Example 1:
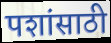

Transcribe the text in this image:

पशांसाठी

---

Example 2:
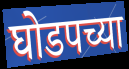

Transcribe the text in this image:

घोडपच्या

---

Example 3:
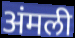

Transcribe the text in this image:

अंमली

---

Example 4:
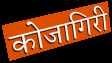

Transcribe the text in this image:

कोजागिरी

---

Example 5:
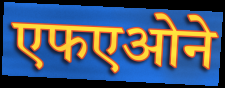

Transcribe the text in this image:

एफएओने